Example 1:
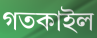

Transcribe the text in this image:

গতকাইল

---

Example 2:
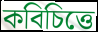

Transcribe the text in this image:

কবিচিত্তে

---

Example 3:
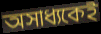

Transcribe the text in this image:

অসাধ্যকেই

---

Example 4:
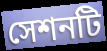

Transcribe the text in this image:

সেশনটি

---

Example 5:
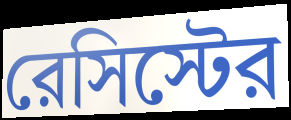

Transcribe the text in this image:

রেসিস্টের